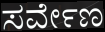
ಸರ್ವೇಣ